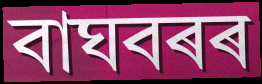
বাঘবৰৰ